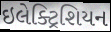
ઇલેક્ટ્રિશિયન